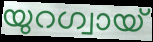
യുറഗ്വായ്